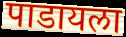
पाडायला